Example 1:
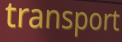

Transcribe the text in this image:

transport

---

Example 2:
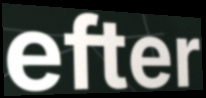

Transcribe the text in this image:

efter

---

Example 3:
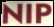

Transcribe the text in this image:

NIP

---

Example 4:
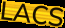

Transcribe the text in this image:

LACS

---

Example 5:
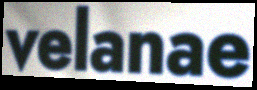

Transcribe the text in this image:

velanae